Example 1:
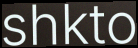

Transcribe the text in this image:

shkto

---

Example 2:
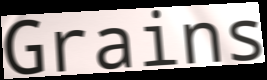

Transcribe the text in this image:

Grains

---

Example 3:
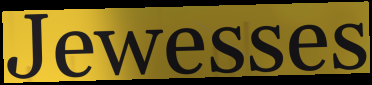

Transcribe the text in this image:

Jewesses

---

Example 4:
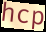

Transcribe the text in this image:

hcp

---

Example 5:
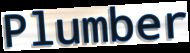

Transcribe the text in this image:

Plumber